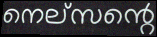
നെല്സന്റെ